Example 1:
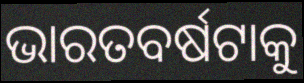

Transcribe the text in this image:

ଭାରତବର୍ଷଟାକୁ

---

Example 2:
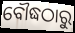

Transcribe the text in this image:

ବୌଦ୍ଧଠାରୁ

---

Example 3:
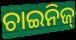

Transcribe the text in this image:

ଚାଇନିଜ୍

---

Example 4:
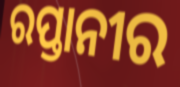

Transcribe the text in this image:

ରପ୍ତାନୀର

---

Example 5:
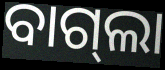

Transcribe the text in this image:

ବାଗ୍‍ଲା